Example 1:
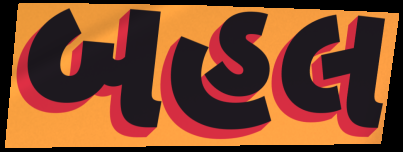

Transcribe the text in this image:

બહલ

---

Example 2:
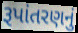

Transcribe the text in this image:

રૂપાંતરણનું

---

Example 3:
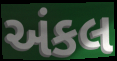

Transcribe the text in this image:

અંકલ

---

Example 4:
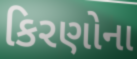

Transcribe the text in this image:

કિરણોના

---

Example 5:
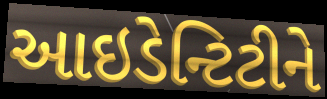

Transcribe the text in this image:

આઇડેન્ટિટીને